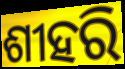
ଶୀହରି